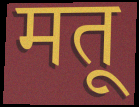
मतू